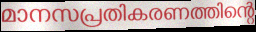
മാനസപ്രതികരണത്തിന്റെ